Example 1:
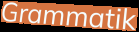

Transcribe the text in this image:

Grammatik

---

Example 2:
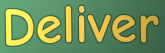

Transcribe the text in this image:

Deliver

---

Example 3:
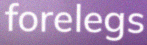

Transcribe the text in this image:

forelegs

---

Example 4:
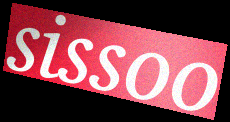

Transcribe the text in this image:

sissoo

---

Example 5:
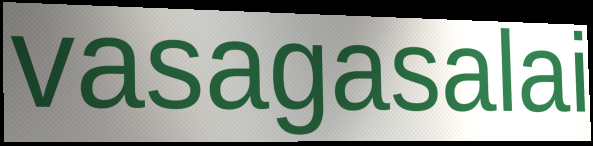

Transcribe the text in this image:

vasagasalai